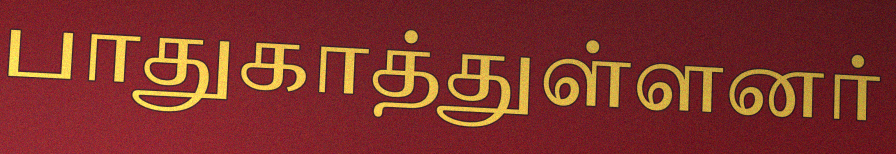
பாதுகாத்துள்ளனர்